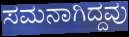
ಸಮನಾಗಿದ್ದವು